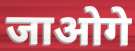
जाओगे